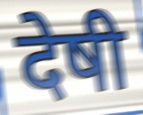
देषी